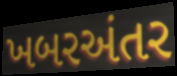
ખબરઅંતર